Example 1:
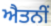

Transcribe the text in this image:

ਐਤਨੀਂ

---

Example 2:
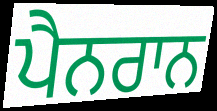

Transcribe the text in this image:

ਪੈਨਰਾਨ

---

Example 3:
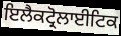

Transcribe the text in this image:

ਇਲੈਕਟ੍ਰੋਲਾਈਟਿਕ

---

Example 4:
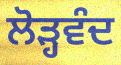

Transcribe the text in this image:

ਲੋੜ੍ਹਵੰਦ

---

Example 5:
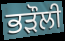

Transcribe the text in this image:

ਭੜੌਲੀ